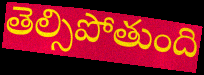
తెల్సిపోతుంది